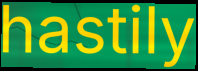
hastily